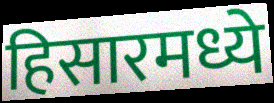
हिसारमध्ये